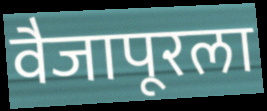
वैजापूरला